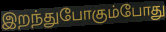
இறந்துபோகும்போது